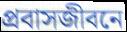
প্রবাসজীবনে